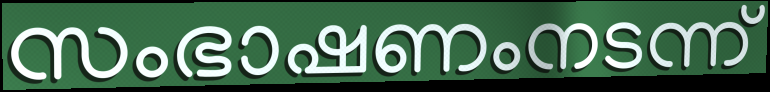
സംഭാഷണംനടന്ന്